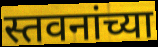
स्तवनांच्या